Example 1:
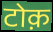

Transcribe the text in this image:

टोक़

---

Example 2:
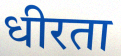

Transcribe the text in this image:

धीरता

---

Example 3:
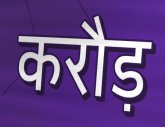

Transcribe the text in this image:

करौड़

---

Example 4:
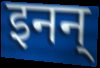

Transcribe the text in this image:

इनन्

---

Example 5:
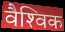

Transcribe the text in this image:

वैश्‍विक